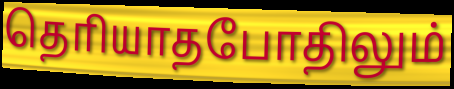
தெரியாதபோதிலும்